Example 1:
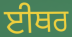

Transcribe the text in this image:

ਈਥਰ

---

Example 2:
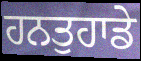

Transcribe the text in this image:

ਹਨਤੁਹਾਡੇ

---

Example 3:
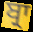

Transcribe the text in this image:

ਬ੍ਰਾ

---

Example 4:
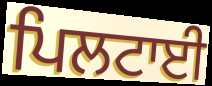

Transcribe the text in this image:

ਪਿਲਟਾਈ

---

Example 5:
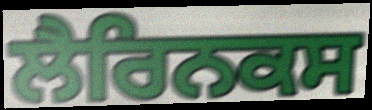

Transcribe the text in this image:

ਲੈਰਿਨਕਸ